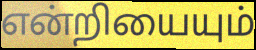
என்றியையும்